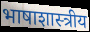
भाषाशास्त्रीय